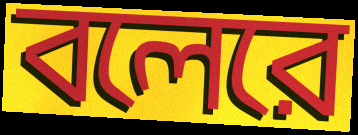
বলেরে